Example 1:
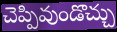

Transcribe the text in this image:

చెప్పివుండొచ్చు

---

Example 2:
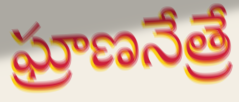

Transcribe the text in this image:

ఘ్రాణనేత్రే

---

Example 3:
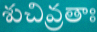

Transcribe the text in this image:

శుచివ్రతాః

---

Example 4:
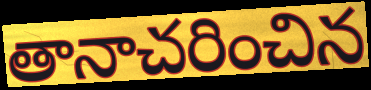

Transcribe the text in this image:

తానాచరించిన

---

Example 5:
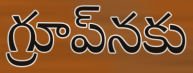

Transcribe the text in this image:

గ్రూప్‌నకు